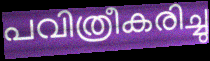
പവിത്രീകരിച്ചു